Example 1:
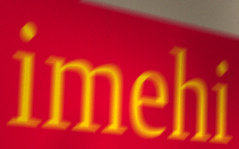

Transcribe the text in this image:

imehi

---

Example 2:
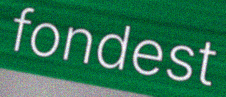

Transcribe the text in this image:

fondest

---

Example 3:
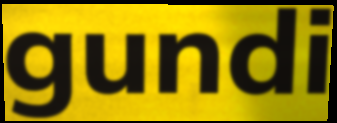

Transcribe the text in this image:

gundi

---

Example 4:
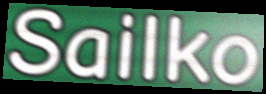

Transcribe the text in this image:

Sailko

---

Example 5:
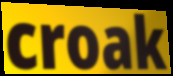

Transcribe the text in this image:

croak